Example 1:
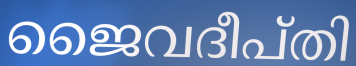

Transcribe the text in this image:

ജൈവദീപ്തി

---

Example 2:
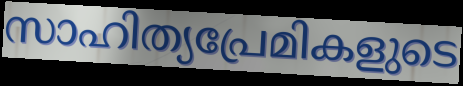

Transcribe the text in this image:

സാഹിത്യപ്രേമികളുടെ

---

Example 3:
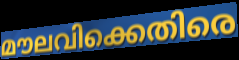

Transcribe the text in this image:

മൗലവിക്കെതിരെ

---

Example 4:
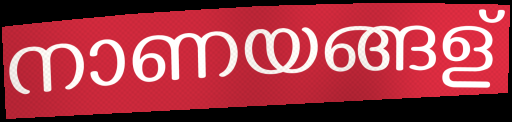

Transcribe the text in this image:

നാണയങ്ങള്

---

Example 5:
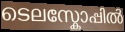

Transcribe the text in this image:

ടെലസ്കോപ്പിൽ